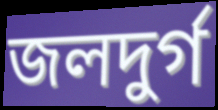
জলদুর্গ